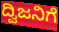
ದ್ವಿಜನಿಗೆ